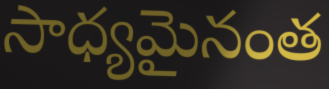
సాధ్యమైనంత